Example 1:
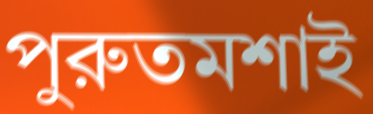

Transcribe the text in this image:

পুরুতমশাই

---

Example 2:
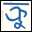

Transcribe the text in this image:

ক্রু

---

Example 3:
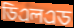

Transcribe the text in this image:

ডিএলএড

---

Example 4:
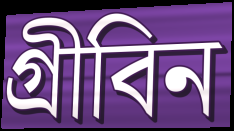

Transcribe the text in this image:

গ্রীবিন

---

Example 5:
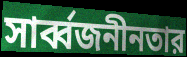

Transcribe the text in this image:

সার্ব্বজনীনতার